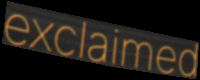
exclaimed